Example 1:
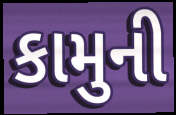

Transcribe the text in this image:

કામુની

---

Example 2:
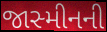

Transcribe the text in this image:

જાસ્મીનની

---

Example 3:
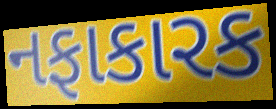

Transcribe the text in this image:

નફાકારક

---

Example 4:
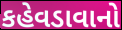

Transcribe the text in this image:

કહેવડાવાનો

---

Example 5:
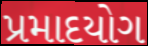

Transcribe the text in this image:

પ્રમાદયોગ